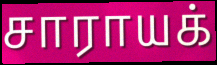
சாராயக்